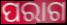
ପରାଗ